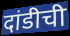
दांडीची